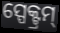
ସ୍ପେକ୍ଟ୍ରମ୍